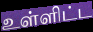
உள்ளிட்ட